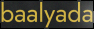
baalyada